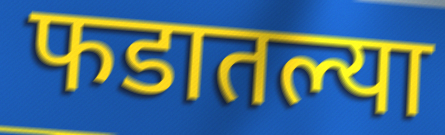
फडातल्या